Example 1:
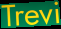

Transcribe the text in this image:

Trevi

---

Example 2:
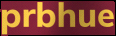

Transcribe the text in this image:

prbhue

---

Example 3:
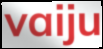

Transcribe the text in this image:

vaiju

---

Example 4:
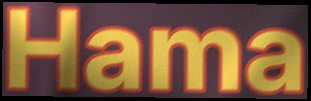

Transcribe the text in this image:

Hama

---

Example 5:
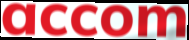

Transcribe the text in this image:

accom